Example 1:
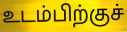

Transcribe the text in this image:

உடம்பிற்குச்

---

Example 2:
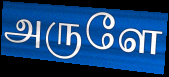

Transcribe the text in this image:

அருளே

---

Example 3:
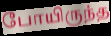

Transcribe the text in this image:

போயிருந்த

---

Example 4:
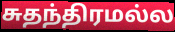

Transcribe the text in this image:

சுதந்திரமல்ல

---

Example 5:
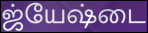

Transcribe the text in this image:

ஜ்யேஷ்டை